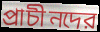
প্রাচীনদের